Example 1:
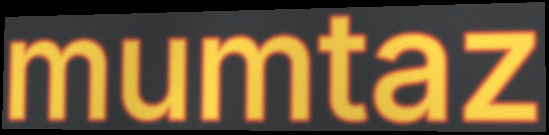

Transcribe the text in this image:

mumtaz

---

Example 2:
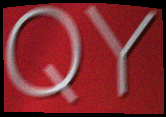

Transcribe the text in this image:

QY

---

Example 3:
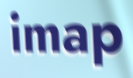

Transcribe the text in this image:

imap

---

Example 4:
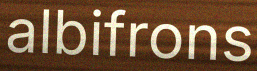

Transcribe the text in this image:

albifrons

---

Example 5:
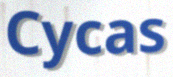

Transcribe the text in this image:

Cycas